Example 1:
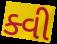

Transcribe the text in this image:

ક્વી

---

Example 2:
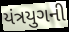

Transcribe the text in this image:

યંત્રયુગની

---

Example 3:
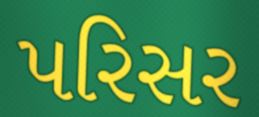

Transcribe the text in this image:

પરિસર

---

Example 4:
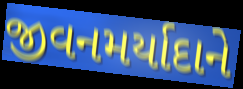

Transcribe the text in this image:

જીવનમર્યાદાને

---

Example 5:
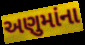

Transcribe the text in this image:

અણુમાંના